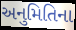
અનુમિતિના